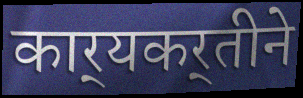
कार्यकर्तीने